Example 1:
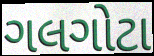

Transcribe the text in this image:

ગલગોટા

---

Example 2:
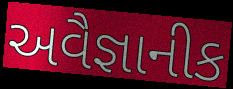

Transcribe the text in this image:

અવૈજ્ઞાનીક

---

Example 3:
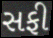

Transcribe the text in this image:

સફી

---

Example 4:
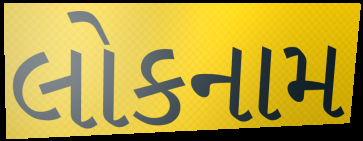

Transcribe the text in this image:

લોકનામ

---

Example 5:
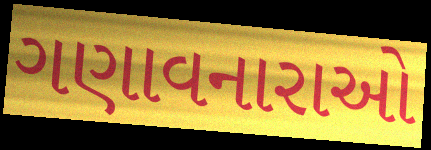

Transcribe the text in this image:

ગણાવનારાઓ